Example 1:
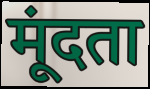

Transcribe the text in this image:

मूंदता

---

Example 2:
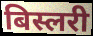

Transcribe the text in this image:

बिस्लरी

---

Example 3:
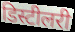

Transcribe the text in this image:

डिस्टीलरी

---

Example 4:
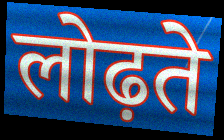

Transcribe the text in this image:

लोढ़ते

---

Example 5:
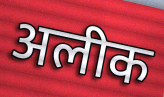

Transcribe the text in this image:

अलीक